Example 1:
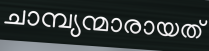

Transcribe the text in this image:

ചാമ്പ്യന്മാരായത്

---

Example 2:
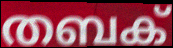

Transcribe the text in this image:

തബക്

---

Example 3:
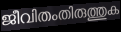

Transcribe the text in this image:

ജീവിതംതിരുത്തുക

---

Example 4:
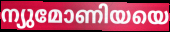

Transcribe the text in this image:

ന്യുമോണിയയെ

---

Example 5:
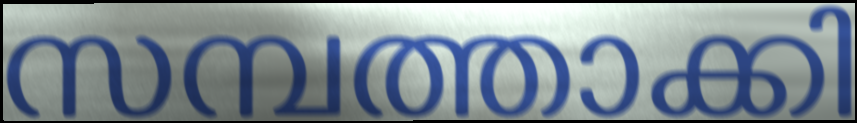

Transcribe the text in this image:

സമ്പത്താക്കി